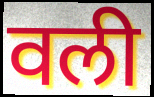
वली